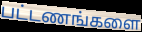
பட்டணங்களை